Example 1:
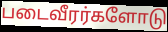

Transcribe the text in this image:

படைவீரர்களோடு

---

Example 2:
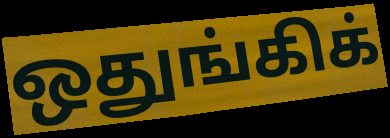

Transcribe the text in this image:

ஒதுங்கிக்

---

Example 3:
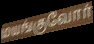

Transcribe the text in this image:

மயங்குவோர்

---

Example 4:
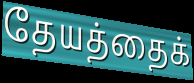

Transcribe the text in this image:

தேயத்தைக்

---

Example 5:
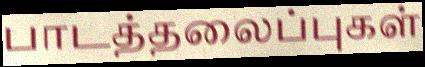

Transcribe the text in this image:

பாடத்தலைப்புகள்